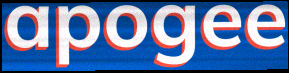
apogee